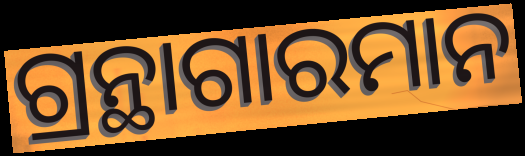
ଗ୍ରନ୍ଥାଗାରମାନ